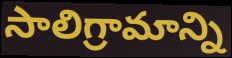
సాలిగ్రామాన్ని